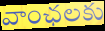
వాంఛలకు